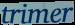
trimer